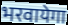
भरवायेगा